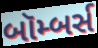
બૉમ્બર્સ